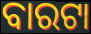
ବାରଟା